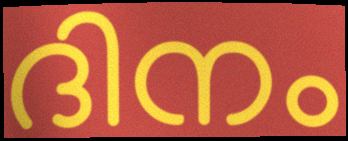
ദിനം